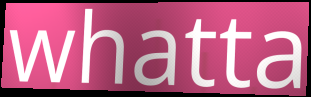
whatta